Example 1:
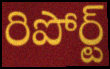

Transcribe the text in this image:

రిపోర్ట్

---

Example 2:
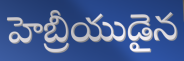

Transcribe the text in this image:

హెబ్రీయుడైన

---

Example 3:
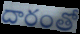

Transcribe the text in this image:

దారంతో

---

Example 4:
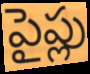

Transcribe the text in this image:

పైప్లు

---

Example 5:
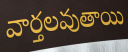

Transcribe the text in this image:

వార్తలవుతాయి